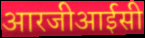
आरजीआईसी